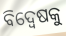
ବିଦ୍ବେଷକୁ